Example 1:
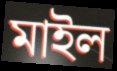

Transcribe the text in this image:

মাইল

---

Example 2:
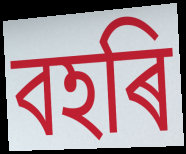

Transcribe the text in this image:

বহৰি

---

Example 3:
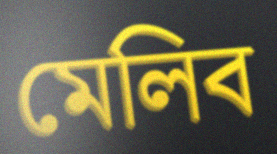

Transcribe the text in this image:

মেলিব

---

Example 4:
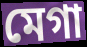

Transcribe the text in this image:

মেগা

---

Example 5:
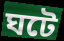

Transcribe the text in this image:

ঘটে